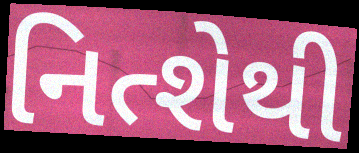
નિત્શેથી